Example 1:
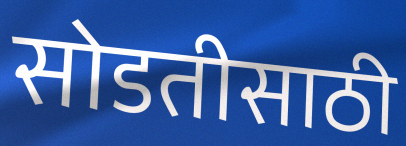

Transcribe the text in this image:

सोडतीसाठी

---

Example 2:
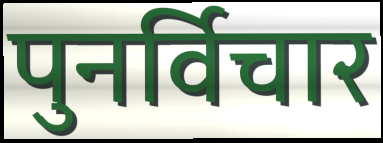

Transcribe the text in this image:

पुनर्विचार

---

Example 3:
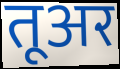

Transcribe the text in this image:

तूअर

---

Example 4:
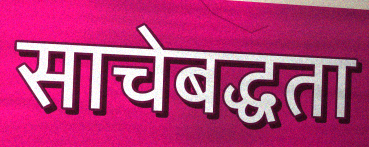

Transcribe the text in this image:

साचेबद्धता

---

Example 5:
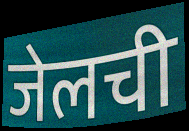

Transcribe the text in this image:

जेलची